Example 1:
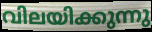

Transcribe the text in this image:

വിലയിക്കുന്നു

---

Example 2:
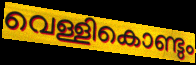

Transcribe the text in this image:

വെള്ളികൊണ്ടും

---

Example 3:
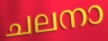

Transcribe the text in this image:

ചലനാ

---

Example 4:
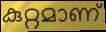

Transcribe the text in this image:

കുറ്റമാണ്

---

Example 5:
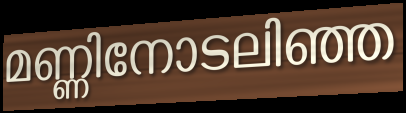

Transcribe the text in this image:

മണ്ണിനോടലിഞ്ഞ